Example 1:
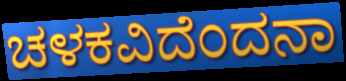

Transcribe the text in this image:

ಚಳಕವಿದೆಂದನಾ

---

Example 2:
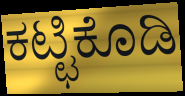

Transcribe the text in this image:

ಕಟ್ಟಿಕೊಡಿ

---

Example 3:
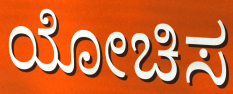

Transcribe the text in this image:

ಯೋಚಿಸ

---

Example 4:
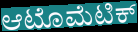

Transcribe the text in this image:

ಆಟೊಮೆಟಿಕ್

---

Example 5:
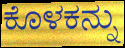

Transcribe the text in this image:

ಕೊಳಕನ್ನು